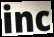
inc